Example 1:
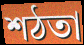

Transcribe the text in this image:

শঠতা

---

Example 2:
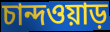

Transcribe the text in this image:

চান্দওয়াড়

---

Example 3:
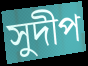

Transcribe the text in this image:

সুদীপ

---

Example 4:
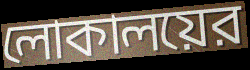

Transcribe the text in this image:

লোকালয়ের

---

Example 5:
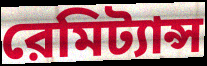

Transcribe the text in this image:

রেমিট্যান্স